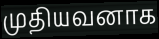
முதியவனாக